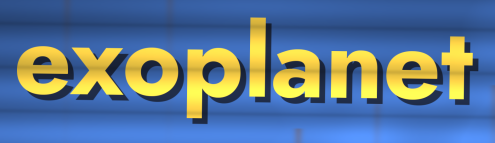
exoplanet